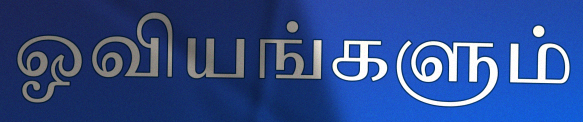
ஓவியங்களும்